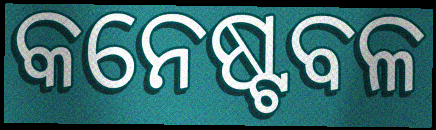
କନେଷ୍ଟବଳ